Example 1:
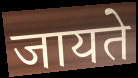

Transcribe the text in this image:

जायते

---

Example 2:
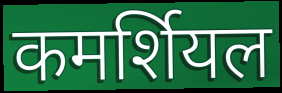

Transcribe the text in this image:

कमर्शियल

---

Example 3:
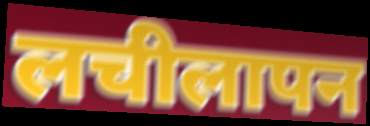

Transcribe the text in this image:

लचीलापन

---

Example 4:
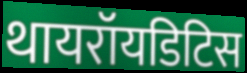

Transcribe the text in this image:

थायरॉयडिटिस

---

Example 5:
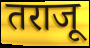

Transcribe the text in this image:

तराजू